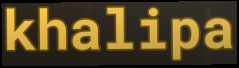
khalipa